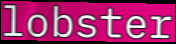
lobster